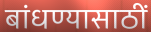
बांधण्यासाठीं